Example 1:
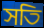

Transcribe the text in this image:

সতি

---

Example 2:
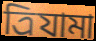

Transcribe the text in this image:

ত্রিযামা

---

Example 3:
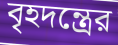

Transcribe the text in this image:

বৃহদন্ত্রের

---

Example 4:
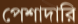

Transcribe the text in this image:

পেশাদারি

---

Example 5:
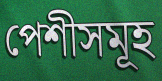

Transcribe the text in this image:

পেশীসমূহ